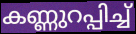
കണ്ണുറപ്പിച്ച്